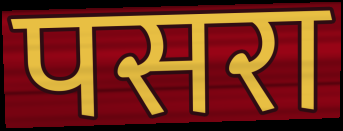
पसरा